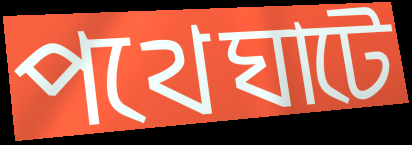
পথেঘাটে